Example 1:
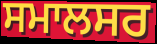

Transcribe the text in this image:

ਸਮਾਲਸਰ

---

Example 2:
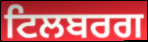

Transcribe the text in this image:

ਟਿਲਬਰਗ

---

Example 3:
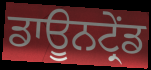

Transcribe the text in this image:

ਡਾਊਨਟ੍ਰੇਂਡ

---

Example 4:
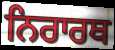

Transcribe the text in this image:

ਨਿਰਾਰਥ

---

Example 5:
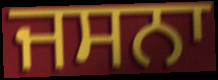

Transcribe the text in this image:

ਜਸਨਾ